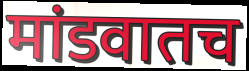
मांडवातच